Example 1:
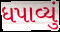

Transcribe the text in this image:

ધપાવ્યું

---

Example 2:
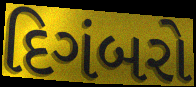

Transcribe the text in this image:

દિગંબરો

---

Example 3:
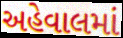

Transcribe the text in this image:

અહેવાલમાં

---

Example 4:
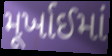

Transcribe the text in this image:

મૂર્ખાઈમાં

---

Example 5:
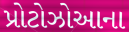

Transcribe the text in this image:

પ્રોટોઝોઆના